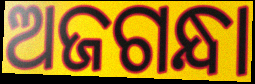
ଅଜଗନ୍ଧା